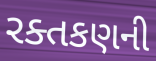
રક્તકણની